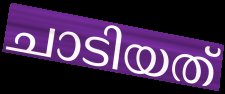
ചാടിയത്